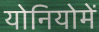
योनियोमें